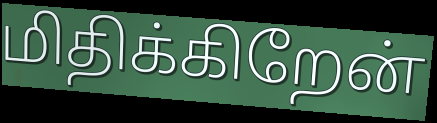
மிதிக்கிறேன்